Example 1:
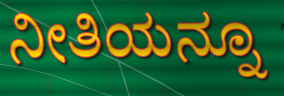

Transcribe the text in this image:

ನೀತಿಯನ್ನೂ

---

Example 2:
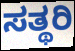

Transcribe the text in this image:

ಸತ್ಥರಿ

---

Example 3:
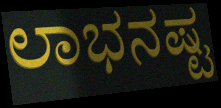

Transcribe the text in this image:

ಲಾಭನಷ್ಟ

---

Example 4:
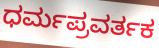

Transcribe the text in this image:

ಧರ್ಮಪ್ರವರ್ತಕ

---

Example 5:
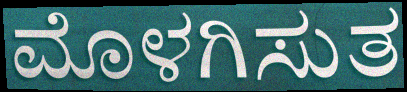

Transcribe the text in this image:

ಮೊಳಗಿಸುತ